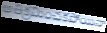
అతిక్రమించకపోయినా